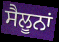
ਸੈਲੂਨਾਂ